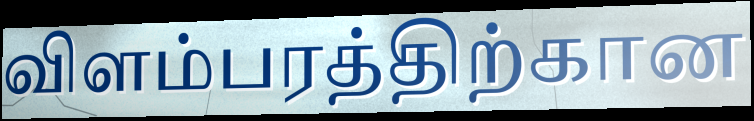
விளம்பரத்திற்கான